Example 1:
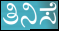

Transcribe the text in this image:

ತಿನಿಸೆ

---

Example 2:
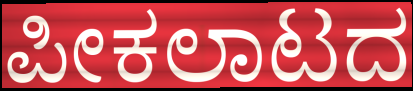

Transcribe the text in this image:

ಪೀಕಲಾಟದ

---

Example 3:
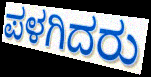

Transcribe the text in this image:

ಪಳಗಿದರು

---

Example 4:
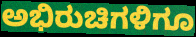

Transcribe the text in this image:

ಅಭಿರುಚಿಗಳಿಗೂ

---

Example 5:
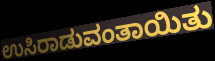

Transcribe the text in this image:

ಉಸಿರಾಡುವಂತಾಯಿತು